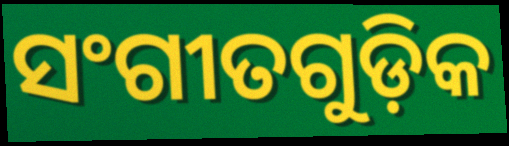
ସଂଗୀତଗୁଡ଼ିକ